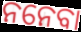
ନନେବା